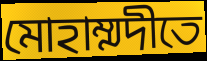
মোহাম্মদীতে